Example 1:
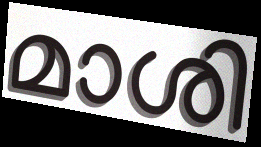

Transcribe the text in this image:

മാശി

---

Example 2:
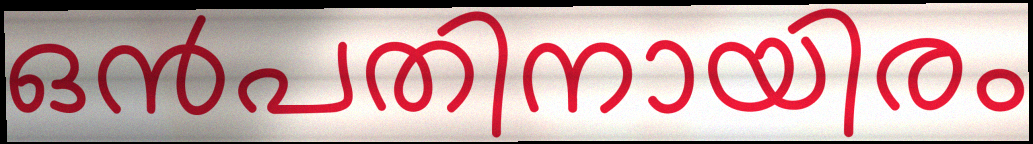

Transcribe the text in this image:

ഒൻപതിനായിരം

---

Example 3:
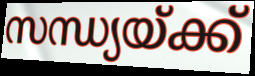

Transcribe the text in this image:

സന്ധ്യയ്ക്ക്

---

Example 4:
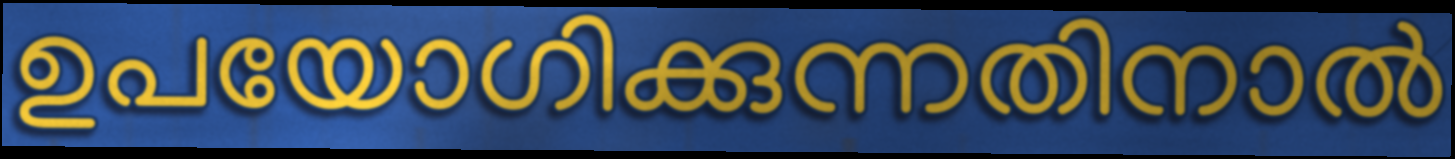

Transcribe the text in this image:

ഉപയോഗിക്കുന്നതിനാൽ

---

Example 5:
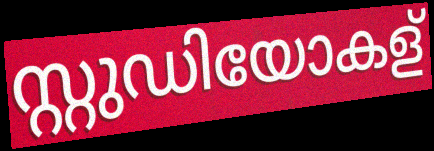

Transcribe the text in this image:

സ്റ്റുഡിയോകള്